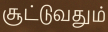
சூட்டுவதும்